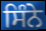
ਸਿੰਨੇ